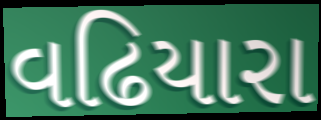
વઢિયારા